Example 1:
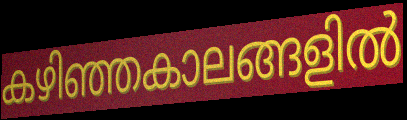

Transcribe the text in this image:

കഴിഞ്ഞകാലങ്ങളിൽ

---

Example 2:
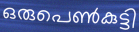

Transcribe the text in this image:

ഒരുപെൺകുട്ടി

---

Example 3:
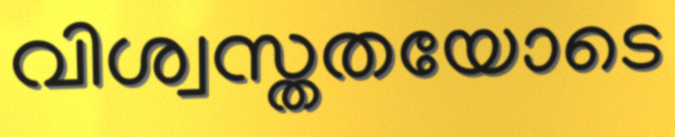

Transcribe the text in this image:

വിശ്വസ്തതയോടെ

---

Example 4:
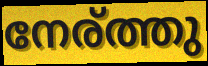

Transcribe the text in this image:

നേര്ത്തു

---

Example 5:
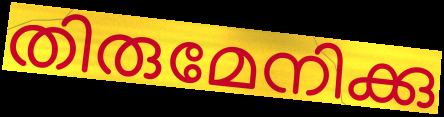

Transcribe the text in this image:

തിരുമേനിക്കു